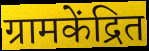
ग्रामकेंद्रित